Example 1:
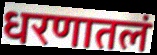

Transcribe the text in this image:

धरणातलं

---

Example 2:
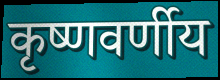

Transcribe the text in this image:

कृष्णवर्णीय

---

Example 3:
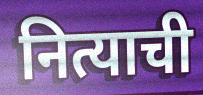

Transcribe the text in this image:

नित्याची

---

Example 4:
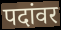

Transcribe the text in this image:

पदांवर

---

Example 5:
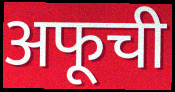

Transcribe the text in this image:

अफूची